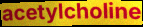
acetylcholine